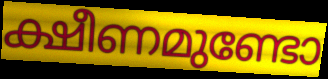
ക്ഷീണമുണ്ടോ